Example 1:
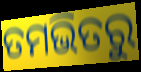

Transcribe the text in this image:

ତମଭିତରୁ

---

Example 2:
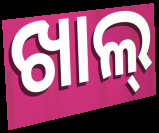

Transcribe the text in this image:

ଖାଲ୍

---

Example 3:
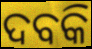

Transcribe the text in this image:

ଦବକି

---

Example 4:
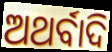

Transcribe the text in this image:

ଅଥର୍ବାଦି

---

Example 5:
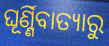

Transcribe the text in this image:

ଘୂର୍ଣ୍ଣିବାତ୍ୟାରୁ